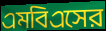
এমবিএসের